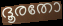
ദൂരതോ